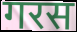
गरस